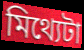
মিথ্যেটা